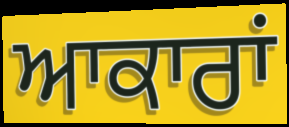
ਆਕਾਰਾਂ